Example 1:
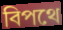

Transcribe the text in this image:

বিপথে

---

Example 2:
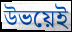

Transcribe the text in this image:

উভয়েই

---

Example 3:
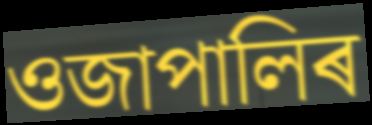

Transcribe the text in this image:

ওজাপালিৰ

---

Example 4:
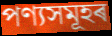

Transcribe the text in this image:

পণ্যসমূহৰ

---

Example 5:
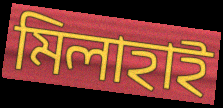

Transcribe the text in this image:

মিলাহাই